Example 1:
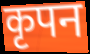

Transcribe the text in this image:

कृपन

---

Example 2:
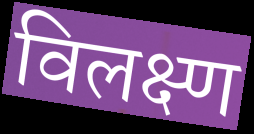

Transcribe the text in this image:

विलक्ष्ण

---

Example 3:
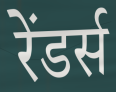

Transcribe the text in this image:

रेंडर्स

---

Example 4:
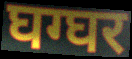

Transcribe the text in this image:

घग्घर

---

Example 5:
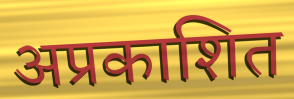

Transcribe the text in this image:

अप्रकाशित